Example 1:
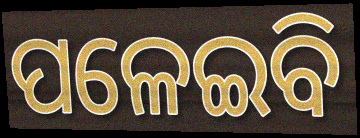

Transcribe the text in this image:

ପଳେଇବି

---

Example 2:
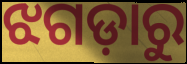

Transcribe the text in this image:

ଝଗଡ଼ାରୁ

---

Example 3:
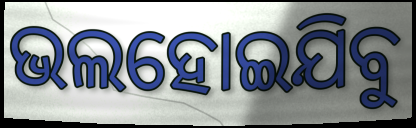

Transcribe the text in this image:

ଭଲହୋଇଯିବୁ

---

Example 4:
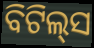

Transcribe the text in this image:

ବିଟିଲ୍‌ସ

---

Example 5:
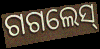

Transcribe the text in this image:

ଗଗଲେସ୍